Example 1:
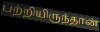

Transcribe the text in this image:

பற்றியிருந்தான்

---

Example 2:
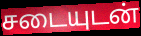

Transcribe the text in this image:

சடையுடன்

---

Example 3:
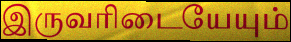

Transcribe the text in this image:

இருவரிடையேயும்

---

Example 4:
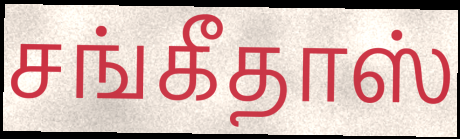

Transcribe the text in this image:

சங்கீதாஸ்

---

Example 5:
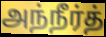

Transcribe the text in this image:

அந்நீர்த்